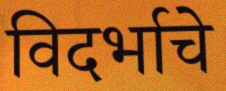
विदर्भाचे